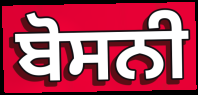
ਬੋਸਨੀ